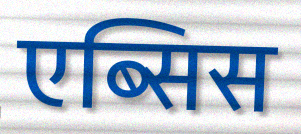
एब्सिस